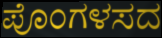
ಪೊಂಗಳಸದ